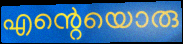
എന്റെയൊരു